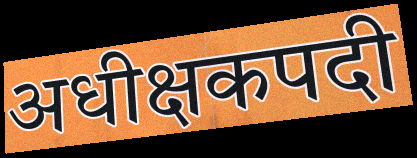
अधीक्षकपदी